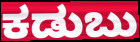
ಕಡುಬು